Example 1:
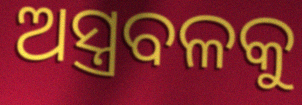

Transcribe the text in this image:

ଅସ୍ତ୍ରବଳକୁ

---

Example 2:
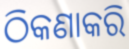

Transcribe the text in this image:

ଠିକଣାକରି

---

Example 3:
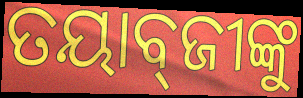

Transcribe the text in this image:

ତୟାବ୍‌ଜୀଙ୍କୁ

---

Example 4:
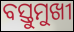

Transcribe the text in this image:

ବସ୍ତୁମୁଖୀ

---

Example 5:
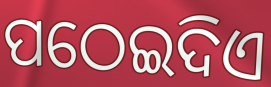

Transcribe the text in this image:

ପଠେଇଦିଏ